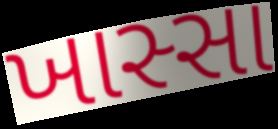
ખાસ્સા